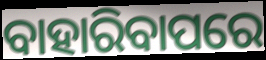
ବାହାରିବାପରେ